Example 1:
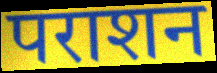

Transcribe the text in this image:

पराशन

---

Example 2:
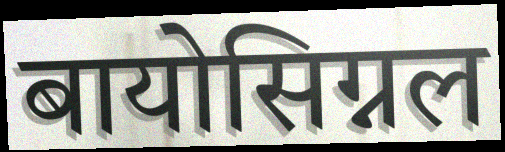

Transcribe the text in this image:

बायोसिग्नल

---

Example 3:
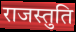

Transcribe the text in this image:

राजस्तुति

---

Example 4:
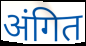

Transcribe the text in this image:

अंगित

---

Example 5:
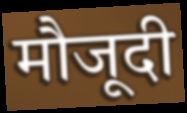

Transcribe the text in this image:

मौजूदी